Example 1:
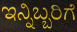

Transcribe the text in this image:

ಇನ್ನಿಬ್ಬರಿಗೆ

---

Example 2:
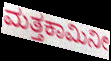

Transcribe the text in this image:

ಮತ್ತಕಾಮಿನೀ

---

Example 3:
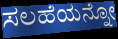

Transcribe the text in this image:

ಸಲಹೆಯನ್ನೋ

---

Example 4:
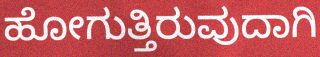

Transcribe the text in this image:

ಹೋಗುತ್ತಿರುವುದಾಗಿ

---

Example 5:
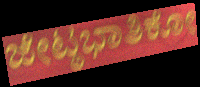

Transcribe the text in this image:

ಜೇಟ್ಠಭಾತಿಕೋ